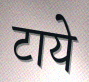
टाये